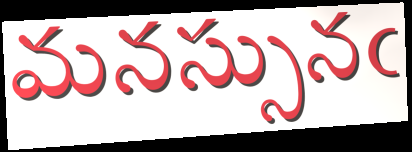
మనస్సునఁ